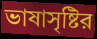
ভাষাসৃষ্টির